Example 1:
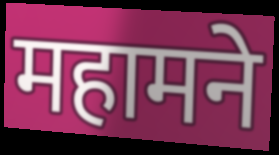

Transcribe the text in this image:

महामने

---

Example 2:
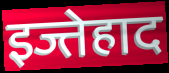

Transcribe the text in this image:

इज्तेहाद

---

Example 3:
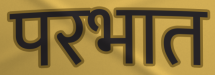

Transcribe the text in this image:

परभात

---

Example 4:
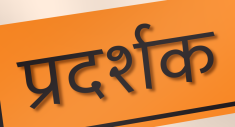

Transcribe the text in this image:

प्रदर्शक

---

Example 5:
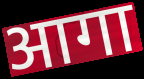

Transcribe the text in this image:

आगा